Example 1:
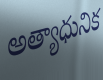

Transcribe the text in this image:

అత్యాధునిక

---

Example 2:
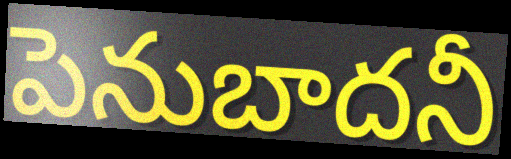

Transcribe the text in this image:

పెనుబాదనీ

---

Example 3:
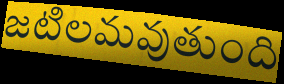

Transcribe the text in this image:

జటిలమవుతుంది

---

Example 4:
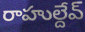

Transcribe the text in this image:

రాహుల్దేవ్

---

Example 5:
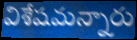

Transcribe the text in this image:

విశేషమన్నారు